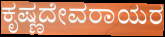
ಕೃಷ್ಣದೇವರಾಯರ